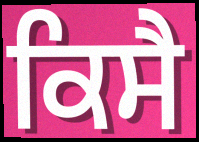
ਕਿਸੈ